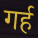
गर्ह